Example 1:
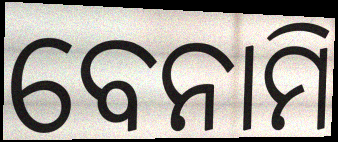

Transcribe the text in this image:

ବେନାମି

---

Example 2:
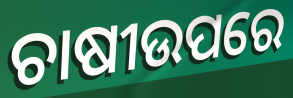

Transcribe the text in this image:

ଚାଷୀଉପରେ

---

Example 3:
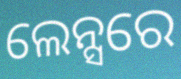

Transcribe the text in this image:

ଲେନ୍ସରେ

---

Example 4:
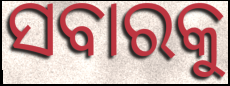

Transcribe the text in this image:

ସବାରକୁ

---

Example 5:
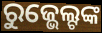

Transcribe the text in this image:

ରୁଜ୍ଭେଲ୍ଟଙ୍କ